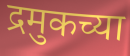
द्रमुकच्या